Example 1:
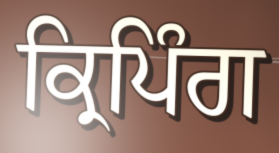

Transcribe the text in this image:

ਕ੍ਰਿਪਿੰਗ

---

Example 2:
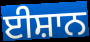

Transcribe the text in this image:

ਈਸ਼ਾਨ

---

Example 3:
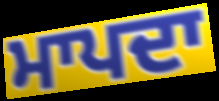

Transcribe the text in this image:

ਮਾਪਦਾ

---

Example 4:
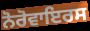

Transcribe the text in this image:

ਨੋਰੋਵਾਇਰਸ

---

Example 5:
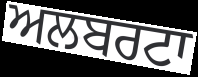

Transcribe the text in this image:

ਅਲਬਰਟਾ